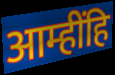
आम्हींहि